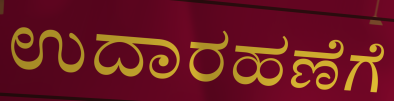
ಉದಾರಹಣೆಗೆ